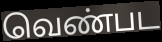
வெண்பட